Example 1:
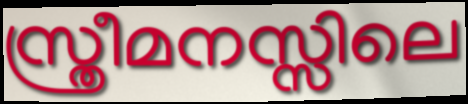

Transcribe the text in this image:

സ്ത്രീമനസ്സിലെ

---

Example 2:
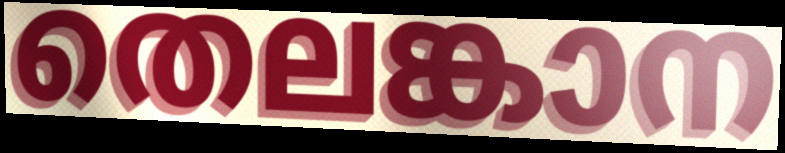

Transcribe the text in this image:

തെലങ്കാന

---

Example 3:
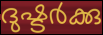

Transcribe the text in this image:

ദുഷ്ടർക്കു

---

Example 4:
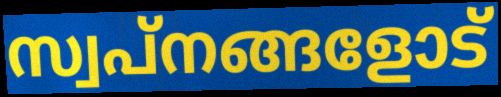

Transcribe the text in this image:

സ്വപ്നങ്ങളോട്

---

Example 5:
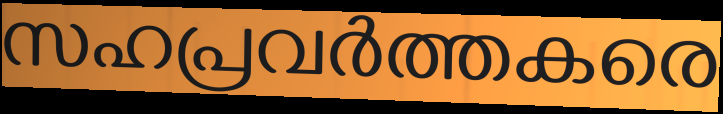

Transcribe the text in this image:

സഹപ്രവർത്തകരെ